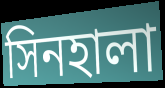
সিনহালা